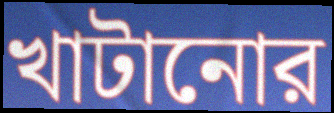
খাটানোর